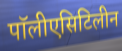
पॉलीएसिटिलीन